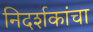
निदर्शकांचा